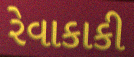
રેવાકાકી